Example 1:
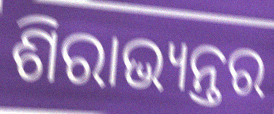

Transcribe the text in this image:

ଶିରାଭ୍ୟନ୍ତର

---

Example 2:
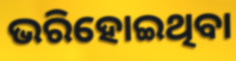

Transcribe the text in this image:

ଭରିହୋଇଥିବା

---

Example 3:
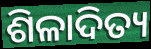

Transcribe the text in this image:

ଶିଳାଦିତ୍ୟ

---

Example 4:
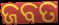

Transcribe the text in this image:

ଜବତ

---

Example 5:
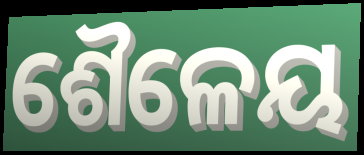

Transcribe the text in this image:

ଶୈଳେୟ